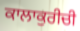
ਕਾਲਾਕੁਰੀਚੀ